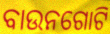
ବାଉନଗୋଟି